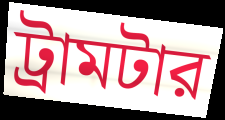
ট্রামটার